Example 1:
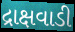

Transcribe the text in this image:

દ્રાક્ષવાડી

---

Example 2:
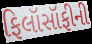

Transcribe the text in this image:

ફિલૉસૉફીની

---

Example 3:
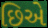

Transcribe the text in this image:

છિએ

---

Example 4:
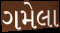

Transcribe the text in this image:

ગમેલા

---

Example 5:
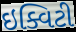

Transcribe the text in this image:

ઇક્વિટી